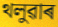
থলুৱাৰ